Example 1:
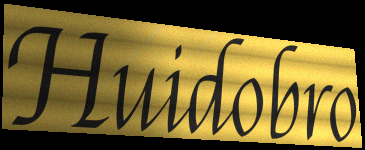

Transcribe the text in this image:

Huidobro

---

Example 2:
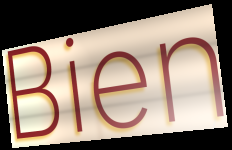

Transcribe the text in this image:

Bien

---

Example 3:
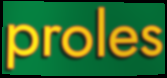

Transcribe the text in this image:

proles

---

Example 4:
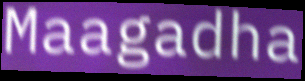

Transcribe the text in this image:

Maagadha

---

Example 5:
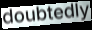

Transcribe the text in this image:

doubtedly